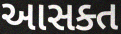
આસક્ત